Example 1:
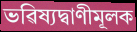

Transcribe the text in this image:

ভৱিষ্যদ্বাণীমূলক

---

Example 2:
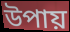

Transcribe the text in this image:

উপায়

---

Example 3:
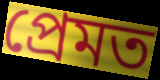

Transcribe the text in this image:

প্ৰেমত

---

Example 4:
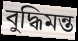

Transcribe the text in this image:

বুদ্ধিমন্ত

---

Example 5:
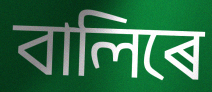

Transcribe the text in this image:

বালিৰে